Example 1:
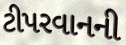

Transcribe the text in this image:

ટીપરવાનની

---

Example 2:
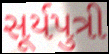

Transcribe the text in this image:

સૂર્યપુત્રી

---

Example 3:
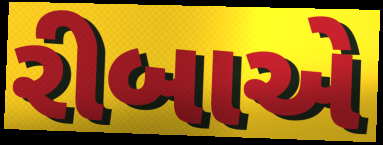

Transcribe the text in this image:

રીબાએ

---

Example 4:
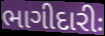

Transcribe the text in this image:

ભાગીદારીઃ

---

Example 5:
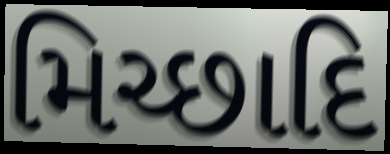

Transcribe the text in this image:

મિચ્છાદિ